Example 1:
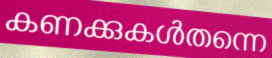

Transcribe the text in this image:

കണക്കുകൾതന്നെ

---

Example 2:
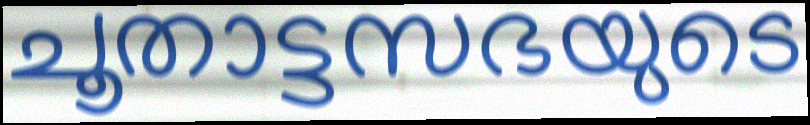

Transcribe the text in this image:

ചൂതാട്ടസഭയുടെ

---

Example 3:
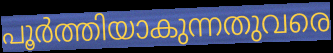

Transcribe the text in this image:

പൂർത്തിയാകുന്നതുവരെ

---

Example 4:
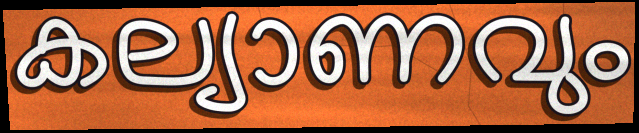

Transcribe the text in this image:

കല്യാണവും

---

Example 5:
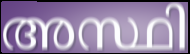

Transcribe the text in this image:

അസ്ഥി